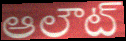
ఆలౌట్